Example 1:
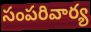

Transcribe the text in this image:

సంపరివార్య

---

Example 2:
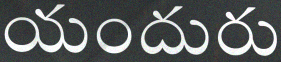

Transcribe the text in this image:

యందురు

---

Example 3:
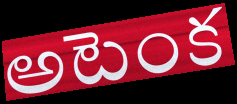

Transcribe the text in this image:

అటెంక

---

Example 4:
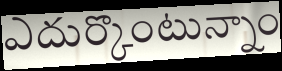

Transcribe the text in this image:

ఎదుర్కొంటున్నాం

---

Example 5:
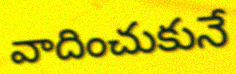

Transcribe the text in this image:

వాదించుకునే